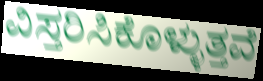
ವಿಸ್ತರಿಸಿಕೊಳ್ಳುತ್ತವೆ